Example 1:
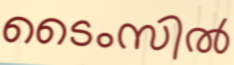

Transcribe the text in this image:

ടൈംസിൽ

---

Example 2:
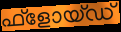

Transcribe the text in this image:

ഫ്ളോയ്ഡ്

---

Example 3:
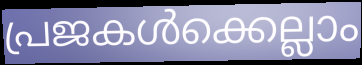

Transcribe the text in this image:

പ്രജകൾക്കെല്ലാം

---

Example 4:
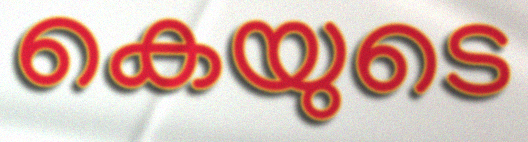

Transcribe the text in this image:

കെയുടെ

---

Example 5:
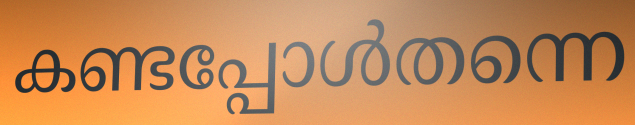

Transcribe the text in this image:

കണ്ടപ്പോൾതന്നെ